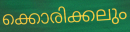
ക്കൊരിക്കലും